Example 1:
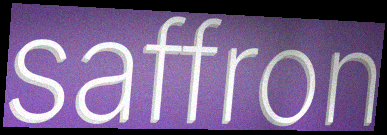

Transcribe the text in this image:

saffron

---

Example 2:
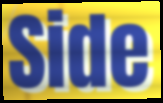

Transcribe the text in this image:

Side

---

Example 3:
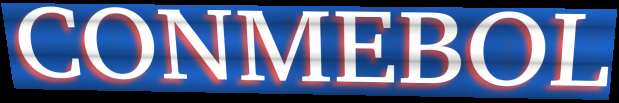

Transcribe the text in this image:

CONMEBOL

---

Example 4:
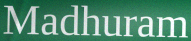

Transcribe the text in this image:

Madhuram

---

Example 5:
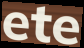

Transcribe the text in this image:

ete